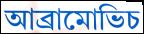
আব্রামোভিচ